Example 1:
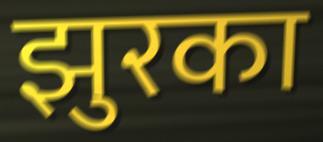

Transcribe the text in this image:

झुरका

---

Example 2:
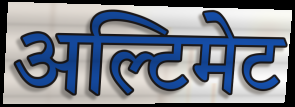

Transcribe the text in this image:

अल्टिमेट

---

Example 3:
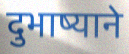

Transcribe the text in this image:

दुभाष्याने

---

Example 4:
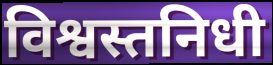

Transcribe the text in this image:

विश्वस्तनिधी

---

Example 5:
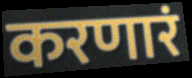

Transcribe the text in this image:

करणारं